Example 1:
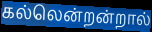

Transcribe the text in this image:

கல்லென்றன்றால்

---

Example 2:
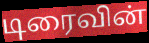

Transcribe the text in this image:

டிரைவின்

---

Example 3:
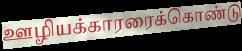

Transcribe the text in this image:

ஊழியக்காரரைக்கொண்டு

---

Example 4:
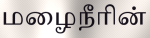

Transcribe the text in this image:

மழைநீரின்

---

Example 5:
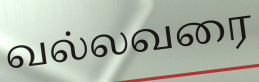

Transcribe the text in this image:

வல்லவரை